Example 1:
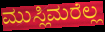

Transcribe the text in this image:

ಮುಸ್ಲಿಮರೆಲ್ಲ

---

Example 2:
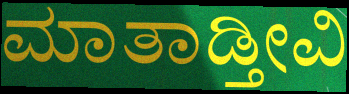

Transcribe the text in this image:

ಮಾತಾಡ್ತೀವಿ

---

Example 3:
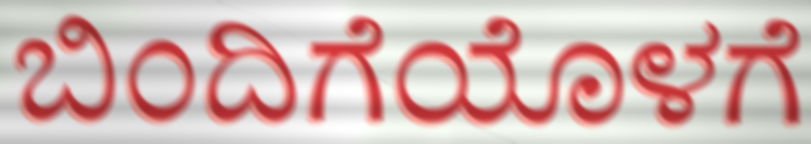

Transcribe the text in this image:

ಬಿಂದಿಗೆಯೊಳಗೆ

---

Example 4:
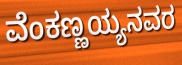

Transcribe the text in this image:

ವೆಂಕಣ್ಣಯ್ಯನವರ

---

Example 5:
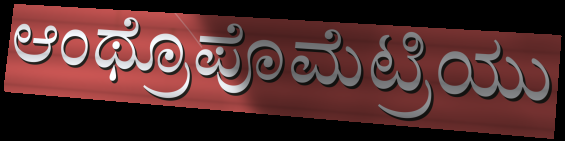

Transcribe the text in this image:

ಆಂಥ್ರೊಪೊಮೆಟ್ರಿಯು